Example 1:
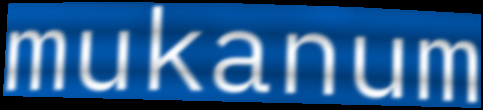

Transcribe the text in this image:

mukanum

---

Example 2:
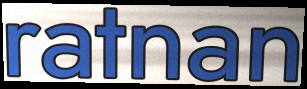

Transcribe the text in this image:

ratnan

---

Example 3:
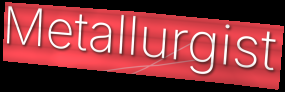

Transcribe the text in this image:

Metallurgist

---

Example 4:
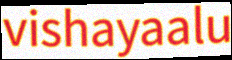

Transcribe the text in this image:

vishayaalu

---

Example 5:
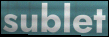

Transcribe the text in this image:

sublet